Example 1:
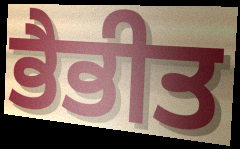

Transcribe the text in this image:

ਭੈਭੀਤ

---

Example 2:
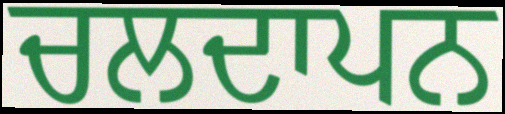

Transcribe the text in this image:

ਚਲਦਾਪਨ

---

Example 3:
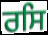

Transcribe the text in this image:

ਰਸਿ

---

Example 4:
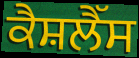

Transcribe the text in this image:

ਕੈਸ਼ਲੈੱਸ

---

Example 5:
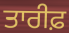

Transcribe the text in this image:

ਤਾਰੀਫ਼